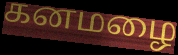
கனமழை